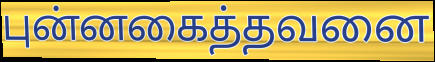
புன்னகைத்தவனை